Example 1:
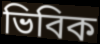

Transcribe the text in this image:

ভিবিক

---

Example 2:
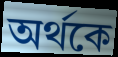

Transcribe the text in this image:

অর্থকে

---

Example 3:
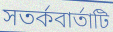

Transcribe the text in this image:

সতর্কবার্তাটি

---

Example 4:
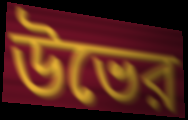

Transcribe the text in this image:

উভের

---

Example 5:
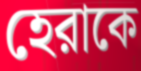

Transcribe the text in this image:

হেরাকে